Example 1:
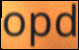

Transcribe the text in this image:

opd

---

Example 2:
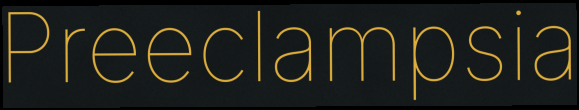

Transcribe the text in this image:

Preeclampsia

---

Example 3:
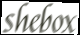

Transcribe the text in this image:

shebox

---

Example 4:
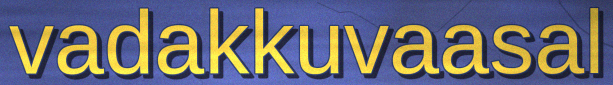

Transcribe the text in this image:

vadakkuvaasal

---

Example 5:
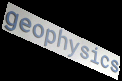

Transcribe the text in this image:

geophysics